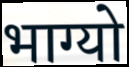
भाग्यो